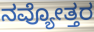
ನವ್ಯೋತ್ತರ